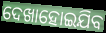
ଦେଖାହୋଇଯିବ